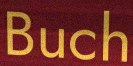
Buch